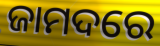
ଜାମଦରେ